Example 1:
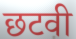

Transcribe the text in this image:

छटवी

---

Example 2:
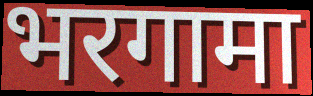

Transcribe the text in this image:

भरगामा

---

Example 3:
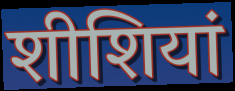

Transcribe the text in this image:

शीशियां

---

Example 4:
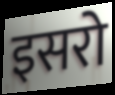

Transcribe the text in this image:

इसरो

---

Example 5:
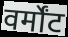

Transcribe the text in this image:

वर्मोंट